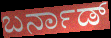
ಬರ್ನಾಡ್